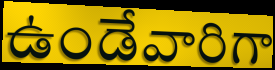
ఉండేవారిగా